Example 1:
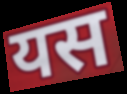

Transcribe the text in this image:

यस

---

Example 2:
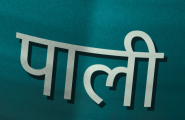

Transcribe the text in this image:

पाली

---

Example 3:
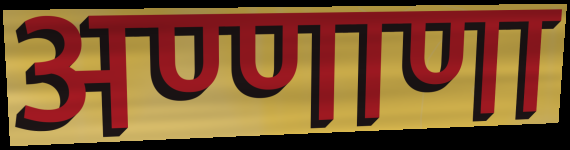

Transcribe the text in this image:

अण्णाणा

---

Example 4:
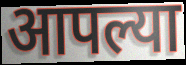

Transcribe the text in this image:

आपल्या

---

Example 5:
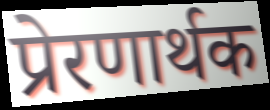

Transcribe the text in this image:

प्रेरणार्थक